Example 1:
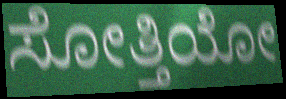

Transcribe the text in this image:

ಸೋತ್ತಿಯೋ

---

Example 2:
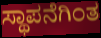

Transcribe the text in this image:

ಸ್ಥಾಪನೆಗಿಂತ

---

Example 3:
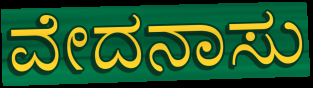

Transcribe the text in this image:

ವೇದನಾಸು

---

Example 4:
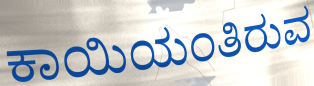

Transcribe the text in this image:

ಕಾಯಿಯಂತಿರುವ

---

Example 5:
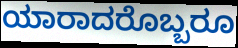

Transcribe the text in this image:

ಯಾರಾದರೊಬ್ಬರೂ